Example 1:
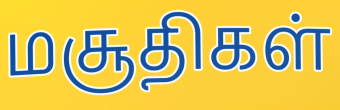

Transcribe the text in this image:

மசூதிகள்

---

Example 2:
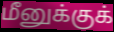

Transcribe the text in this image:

மீனுக்குக்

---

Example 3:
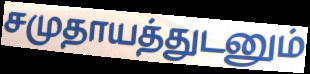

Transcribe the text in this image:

சமுதாயத்துடனும்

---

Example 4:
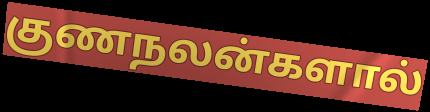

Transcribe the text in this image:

குணநலன்களால்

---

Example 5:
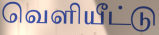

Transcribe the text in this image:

வெளியீட்டு